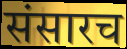
संसारच